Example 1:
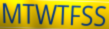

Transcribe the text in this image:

MTWTFSS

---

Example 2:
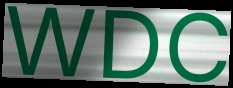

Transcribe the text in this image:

WDC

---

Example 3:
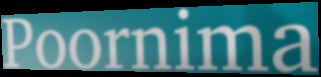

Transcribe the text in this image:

Poornima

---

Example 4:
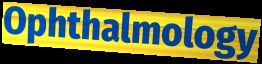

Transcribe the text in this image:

Ophthalmology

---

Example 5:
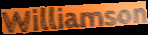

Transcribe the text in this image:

Williamson